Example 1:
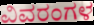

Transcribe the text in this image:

ವಿವರಂಗಳ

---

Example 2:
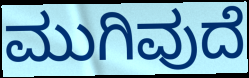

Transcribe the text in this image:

ಮುಗಿವುದೆ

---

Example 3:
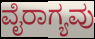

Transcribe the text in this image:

ವೈರಾಗ್ಯವು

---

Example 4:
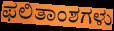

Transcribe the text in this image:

ಫಲಿತಾಂಶಗಳು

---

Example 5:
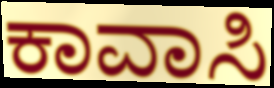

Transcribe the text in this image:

ಕಾವಾಸಿ